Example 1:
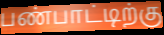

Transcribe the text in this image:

பண்பாட்டிற்கு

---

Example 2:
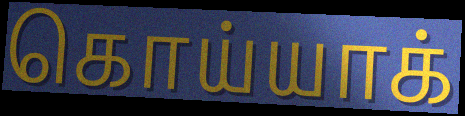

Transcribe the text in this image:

கொய்யாக்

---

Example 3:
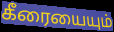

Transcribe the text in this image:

கீரையையும்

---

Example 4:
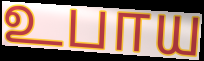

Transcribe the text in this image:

உபாய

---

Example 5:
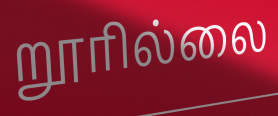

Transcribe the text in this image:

றூரில்லை